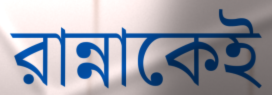
রান্নাকেই